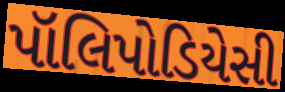
પૉલિપોડિયેસી